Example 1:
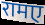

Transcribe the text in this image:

रामए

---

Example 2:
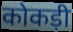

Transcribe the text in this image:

कोकड़ी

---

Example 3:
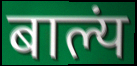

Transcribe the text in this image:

बाल्यं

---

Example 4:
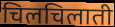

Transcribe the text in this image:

चिलचिलाती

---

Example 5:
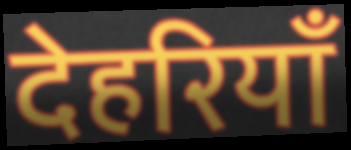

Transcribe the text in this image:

देहरियाँ